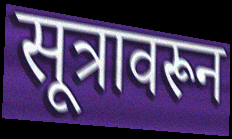
सूत्रावरून